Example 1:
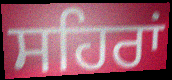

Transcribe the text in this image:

ਸਹਿਰਾਂ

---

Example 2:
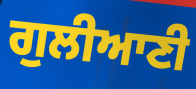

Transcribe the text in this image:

ਗੁਲੀਆਣੀ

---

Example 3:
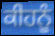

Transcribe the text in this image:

ਕੀਹਨੂੰ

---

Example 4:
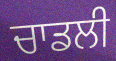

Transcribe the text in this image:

ਚਾਡਲੀ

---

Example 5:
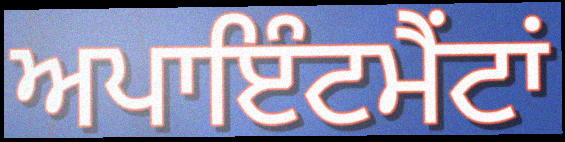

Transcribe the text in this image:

ਅਪਾਇੰਟਮੈਂਟਾਂ